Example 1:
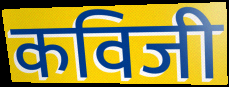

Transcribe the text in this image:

कविजी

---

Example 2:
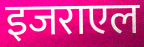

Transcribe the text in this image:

इजराएल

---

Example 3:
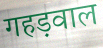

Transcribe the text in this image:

गहड़वाल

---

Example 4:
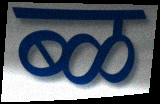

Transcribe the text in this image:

ब्ळ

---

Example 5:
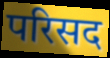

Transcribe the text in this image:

परिसद